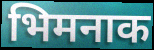
भिमनाक